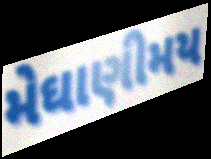
મેઘાણીમય